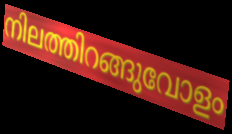
നിലത്തിറങ്ങുവോളം